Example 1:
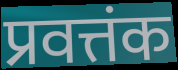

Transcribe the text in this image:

प्रवत्तंक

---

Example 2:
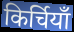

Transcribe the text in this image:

किर्चियाँ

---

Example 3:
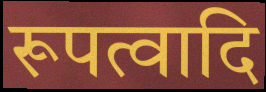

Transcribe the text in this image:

रूपत्वादि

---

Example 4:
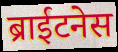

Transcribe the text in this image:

ब्राईटनेस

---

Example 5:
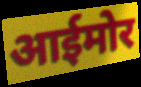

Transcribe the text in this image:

आईमोर